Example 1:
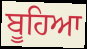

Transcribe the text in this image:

ਬੂਹਿਆ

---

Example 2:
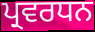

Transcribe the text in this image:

ਪ੍ਰਵਰਧਨ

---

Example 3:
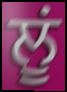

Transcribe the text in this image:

ਲੂਂ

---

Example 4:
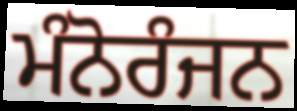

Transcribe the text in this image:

ਮੰਨੋਰੰਜਨ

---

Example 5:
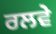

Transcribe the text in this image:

ਰਲਵੇ